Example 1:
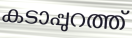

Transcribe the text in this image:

കടാപ്പുറത്ത്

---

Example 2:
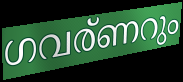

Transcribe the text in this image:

ഗവര്ണറും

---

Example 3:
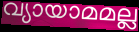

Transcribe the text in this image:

വ്യായാമമല്ല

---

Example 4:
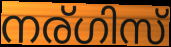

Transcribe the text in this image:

നര്ഗിസ്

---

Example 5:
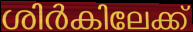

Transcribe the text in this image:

ശിർകിലേക്ക്